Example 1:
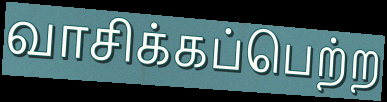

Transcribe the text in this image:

வாசிக்கப்பெற்ற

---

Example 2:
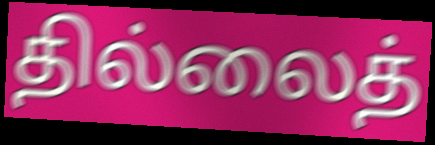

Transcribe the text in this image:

தில்லைத்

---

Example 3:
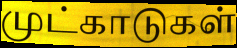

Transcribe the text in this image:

முட்காடுகள்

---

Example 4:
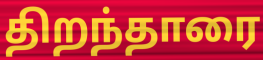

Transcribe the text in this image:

திறந்தாரை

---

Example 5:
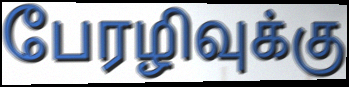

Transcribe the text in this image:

பேரழிவுக்கு